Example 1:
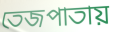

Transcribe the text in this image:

তেজপাতায়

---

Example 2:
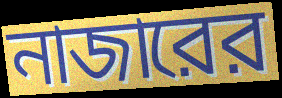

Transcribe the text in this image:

নাজারের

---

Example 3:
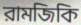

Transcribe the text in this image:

রামজিকি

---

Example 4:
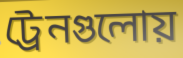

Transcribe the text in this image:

ট্রেনগুলোয়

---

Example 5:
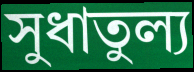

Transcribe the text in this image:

সুধাতুল্য